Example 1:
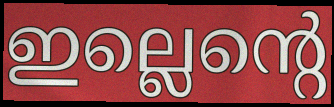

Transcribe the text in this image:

ഇല്ലെന്റെ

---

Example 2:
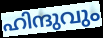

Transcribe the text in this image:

ഹിന്ദുവും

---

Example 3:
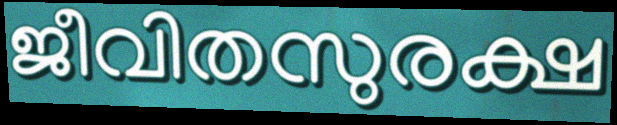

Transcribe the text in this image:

ജീവിതസുരക്ഷ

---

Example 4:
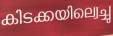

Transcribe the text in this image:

കിടക്കയില്വെച്ചു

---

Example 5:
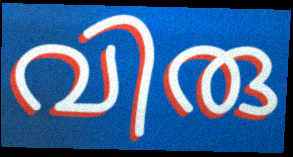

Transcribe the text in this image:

വിരു